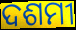
ଦଶମୀ